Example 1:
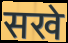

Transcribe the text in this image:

सखे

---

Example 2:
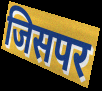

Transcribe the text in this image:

जिसपर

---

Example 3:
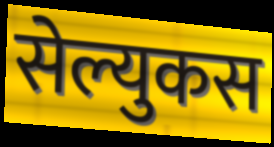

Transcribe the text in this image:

सेल्युकस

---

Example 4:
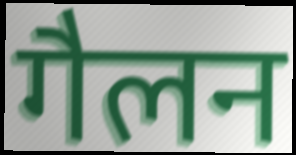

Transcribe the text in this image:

गैलन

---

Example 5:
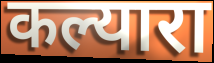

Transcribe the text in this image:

कल्यारा